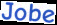
Jobe